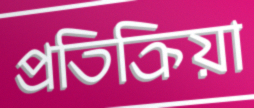
প্রতিক্রিয়া